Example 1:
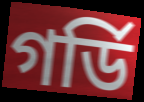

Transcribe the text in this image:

গর্ডি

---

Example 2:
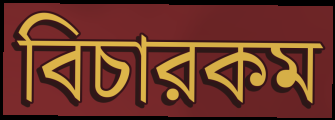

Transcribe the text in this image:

বিচারকম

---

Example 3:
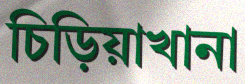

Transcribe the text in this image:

চিড়িয়াখানা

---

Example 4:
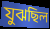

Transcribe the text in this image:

যুঝছিল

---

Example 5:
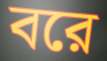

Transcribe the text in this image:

বরে